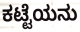
ಕಟ್ಟೆಯನು